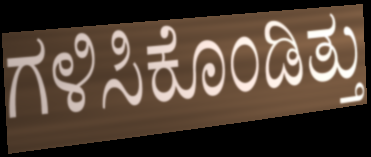
ಗಳಿಸಿಕೊಂಡಿತ್ತು